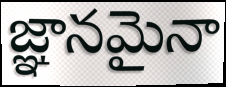
జ్ఞానమైనా